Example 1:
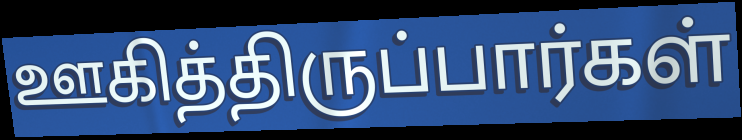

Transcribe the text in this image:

ஊகித்திருப்பார்கள்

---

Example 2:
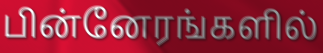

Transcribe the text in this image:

பின்னேரங்களில்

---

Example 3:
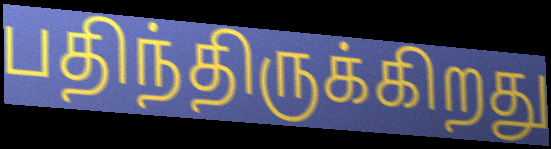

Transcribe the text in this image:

பதிந்திருக்கிறது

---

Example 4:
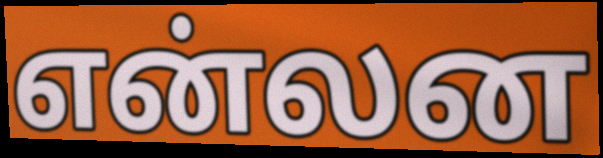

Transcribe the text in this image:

என்லன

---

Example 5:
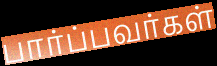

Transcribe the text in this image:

பார்ப்பவர்கள்